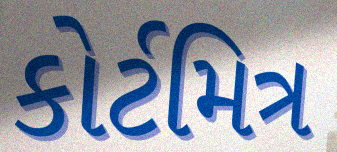
કોર્ટમિત્ર